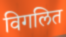
विगलित